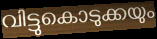
വിട്ടുകൊടുക്കയും